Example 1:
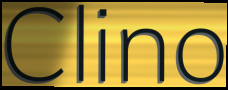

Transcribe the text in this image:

Clino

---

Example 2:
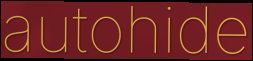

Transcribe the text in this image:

autohide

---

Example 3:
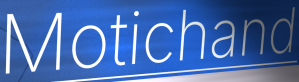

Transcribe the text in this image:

Motichand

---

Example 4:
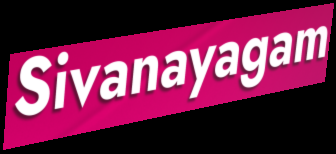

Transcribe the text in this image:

Sivanayagam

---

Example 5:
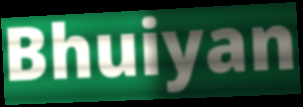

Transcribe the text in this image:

Bhuiyan